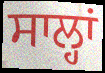
ਸਾਲ੍ਹਾਂ